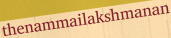
thenammailakshmanan